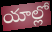
యాల్లో